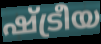
ഷ്ട്രീയ